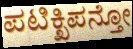
ಪಟಿಕ್ಖಿಪನ್ತೋ